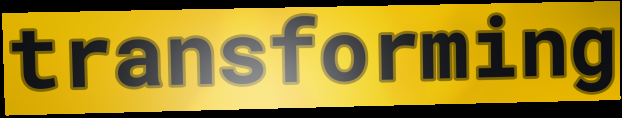
transforming